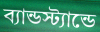
ব্যান্ডস্ট্যান্ডে